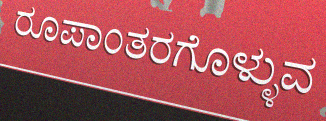
ರೂಪಾಂತರಗೊಳ್ಳುವ